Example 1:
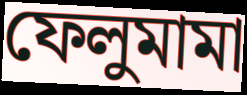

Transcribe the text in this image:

ফেলুমামা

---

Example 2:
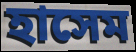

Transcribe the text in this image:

হাসেম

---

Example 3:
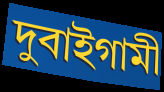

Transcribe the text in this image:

দুবাইগামী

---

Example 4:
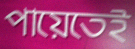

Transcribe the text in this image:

পায়েতেই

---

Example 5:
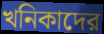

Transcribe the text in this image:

খনিকাদের